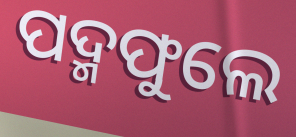
ପଦ୍ମଫୁଲେ